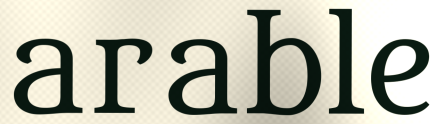
arable